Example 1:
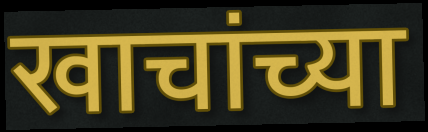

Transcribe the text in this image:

खाचांच्या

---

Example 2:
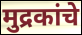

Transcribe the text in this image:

मुद्रकांचे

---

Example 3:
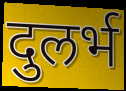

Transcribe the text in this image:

दुलर्भ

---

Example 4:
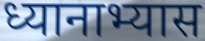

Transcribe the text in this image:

ध्यानाभ्यास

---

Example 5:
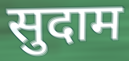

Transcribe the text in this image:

सुदाम